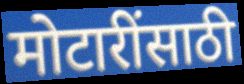
मोटारींसाठी